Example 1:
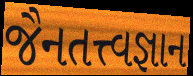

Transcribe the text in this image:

જૈનતત્ત્વજ્ઞાન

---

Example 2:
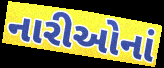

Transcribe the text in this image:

નારીઓનાં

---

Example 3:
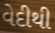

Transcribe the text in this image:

વેદીથી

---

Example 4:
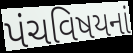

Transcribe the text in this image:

પંચવિષયનાં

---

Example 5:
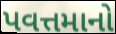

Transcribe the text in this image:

પવત્તમાનો